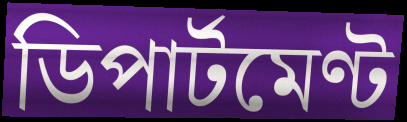
ডিপাৰ্টমেণ্ট